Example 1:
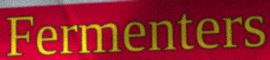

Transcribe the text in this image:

Fermenters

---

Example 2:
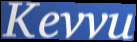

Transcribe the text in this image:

Kevvu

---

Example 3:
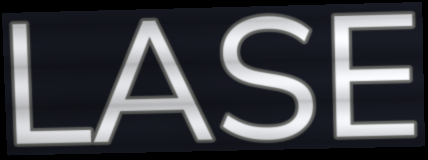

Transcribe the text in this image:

LASE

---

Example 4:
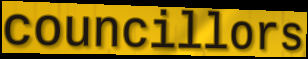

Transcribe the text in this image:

councillors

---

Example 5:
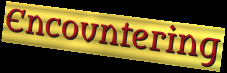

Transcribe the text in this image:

Encountering